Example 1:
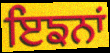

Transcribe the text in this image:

ਇਙਨਾਂ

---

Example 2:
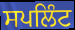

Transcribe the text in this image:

ਸਪਲਿੰਟ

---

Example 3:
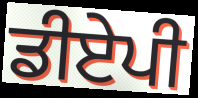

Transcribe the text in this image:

ਡੀਏਪੀ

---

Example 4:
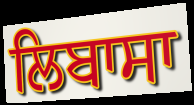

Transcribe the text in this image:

ਲਿਬਾਸਾ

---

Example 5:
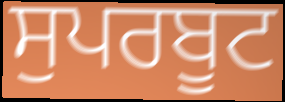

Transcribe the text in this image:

ਸੁਪਰਬੂਟ